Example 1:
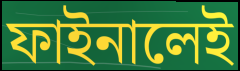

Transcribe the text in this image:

ফাইনালেই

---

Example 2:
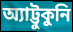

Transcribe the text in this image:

অ্যাট্টুকুনি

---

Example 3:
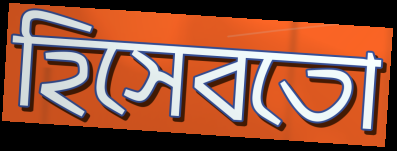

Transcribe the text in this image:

হিসেবতো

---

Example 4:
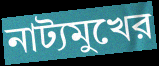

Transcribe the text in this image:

নাট্যমুখের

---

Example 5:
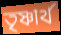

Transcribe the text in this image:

তৃষ্ণার্থ